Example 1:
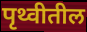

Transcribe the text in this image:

पृथ्वीतील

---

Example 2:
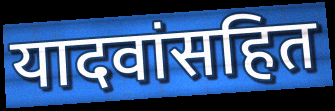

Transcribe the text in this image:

यादवांसहित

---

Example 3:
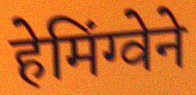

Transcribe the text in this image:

हेमिंग्वेने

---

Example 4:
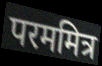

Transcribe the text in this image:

परममित्र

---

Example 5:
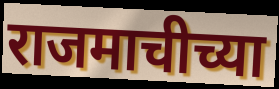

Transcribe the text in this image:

राजमाचीच्या